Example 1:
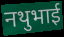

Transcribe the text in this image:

नथुभाई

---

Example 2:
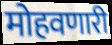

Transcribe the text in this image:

मोहवणारी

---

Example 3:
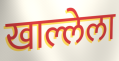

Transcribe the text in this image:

खाल्लेला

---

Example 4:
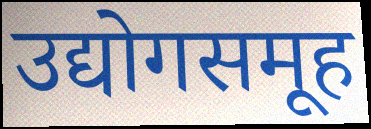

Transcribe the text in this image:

उद्योगसमूह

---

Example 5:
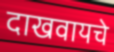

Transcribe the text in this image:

दाखवायचे